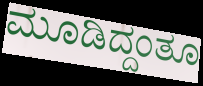
ಮೂಡಿದ್ದಂತೂ